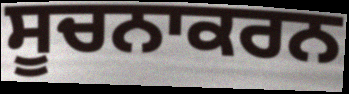
ਸੂਚਨਾਕਰਨ